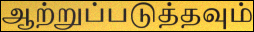
ஆற்றுப்படுத்தவும்